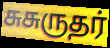
சுசுருதர்